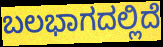
ಬಲಭಾಗದಲ್ಲಿದೆ